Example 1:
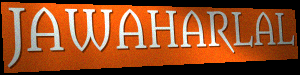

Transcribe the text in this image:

JAWAHARLAL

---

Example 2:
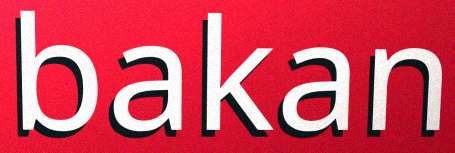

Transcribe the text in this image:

bakan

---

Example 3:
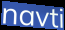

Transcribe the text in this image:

navti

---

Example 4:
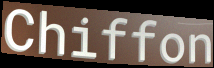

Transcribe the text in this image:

Chiffon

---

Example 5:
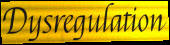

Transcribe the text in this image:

Dysregulation